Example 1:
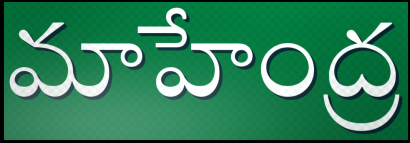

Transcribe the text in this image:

మాహేంద్ర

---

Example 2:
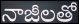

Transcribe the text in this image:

నాజీలతో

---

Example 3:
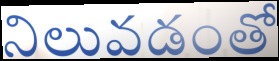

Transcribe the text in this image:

నిలువడంతో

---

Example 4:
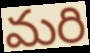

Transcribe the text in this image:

మరి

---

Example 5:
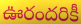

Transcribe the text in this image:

ఊరందరికీ